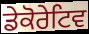
ਡੇਕੋਰੇਟਿਵ